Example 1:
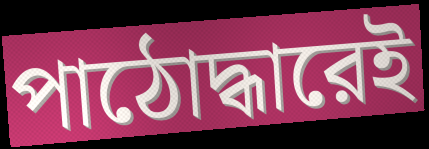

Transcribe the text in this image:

পাঠোদ্ধারেই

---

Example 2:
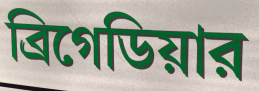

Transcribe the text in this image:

ব্রিগেডিয়ার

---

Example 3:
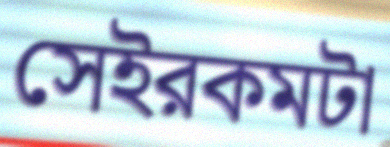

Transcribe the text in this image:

সেইরকমটা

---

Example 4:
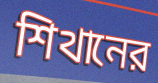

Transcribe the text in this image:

শিথানের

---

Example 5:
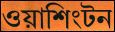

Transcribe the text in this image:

ওয়াশিংটন